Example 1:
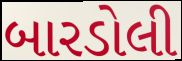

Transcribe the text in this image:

બારડોલી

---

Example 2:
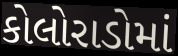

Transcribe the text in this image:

કોલોરાડોમાં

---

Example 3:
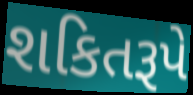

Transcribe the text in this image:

શકિતરૂપે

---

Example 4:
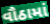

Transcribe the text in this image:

વૌઠામાં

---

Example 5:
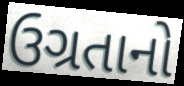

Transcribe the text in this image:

ઉગ્રતાનો